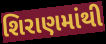
શિરાણમાંથી